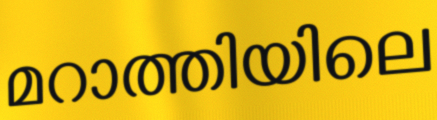
മറാത്തിയിലെ